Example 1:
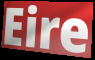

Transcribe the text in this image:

Eire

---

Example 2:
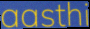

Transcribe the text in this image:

aasthi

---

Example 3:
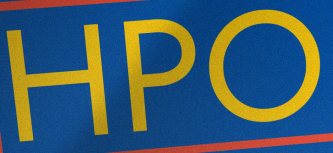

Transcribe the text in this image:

HPO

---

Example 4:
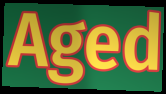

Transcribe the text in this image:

Aged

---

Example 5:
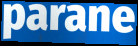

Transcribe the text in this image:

parane